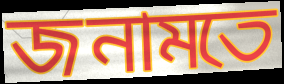
জনামতে